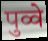
पुव्वे